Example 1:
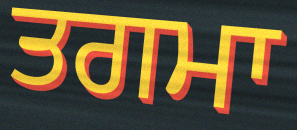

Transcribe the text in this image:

ਤਗਮਾ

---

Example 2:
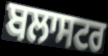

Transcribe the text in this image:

ਬਲਾਸਟਰ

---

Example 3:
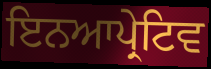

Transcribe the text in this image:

ਇਨਆਪ੍ਰੇਟਿਵ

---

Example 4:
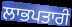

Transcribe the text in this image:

ਲਾਭਪਤਾਰੀ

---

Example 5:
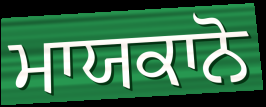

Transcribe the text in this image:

ਮਾਯਕਾਨੋ